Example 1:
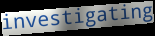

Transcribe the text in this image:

investigating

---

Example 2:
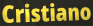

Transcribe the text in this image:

Cristiano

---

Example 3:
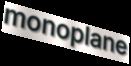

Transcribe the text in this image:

monoplane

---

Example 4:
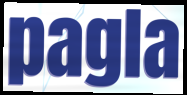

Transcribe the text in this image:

pagla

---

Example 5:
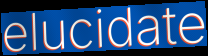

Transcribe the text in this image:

elucidate